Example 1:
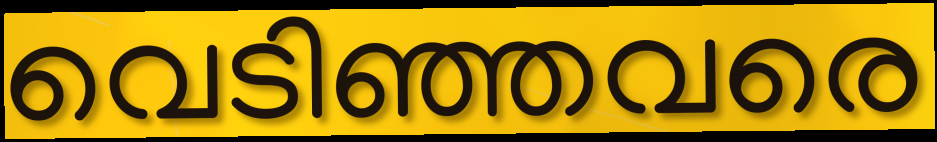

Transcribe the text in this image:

വെടിഞ്ഞവരെ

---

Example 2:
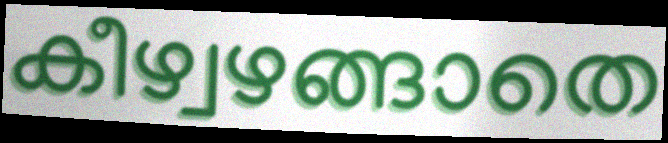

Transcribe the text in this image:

കീഴ്വഴങ്ങാതെ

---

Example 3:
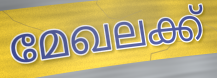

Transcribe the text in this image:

മേഖലക്ക്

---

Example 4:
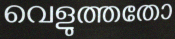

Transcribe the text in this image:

വെളുത്തതോ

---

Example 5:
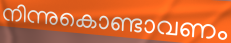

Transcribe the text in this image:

നിന്നുകൊണ്ടാവണം